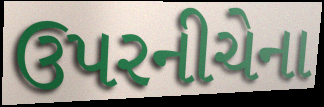
ઉપરનીચેના